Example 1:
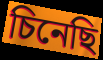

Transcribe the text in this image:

চিনেছি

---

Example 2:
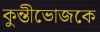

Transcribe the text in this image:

কুন্তীভোজকে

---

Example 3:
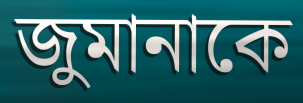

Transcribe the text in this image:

জুমানাকে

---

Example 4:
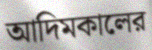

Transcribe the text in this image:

আদিমকালের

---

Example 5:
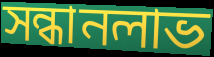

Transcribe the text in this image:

সন্ধানলাভ